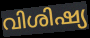
വിശിഷ്യ